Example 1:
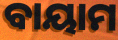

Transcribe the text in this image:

ବାୟାମ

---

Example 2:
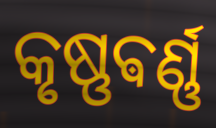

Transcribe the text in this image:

କୃଷ୍ଣଵର୍ଣ୍ଣ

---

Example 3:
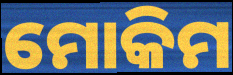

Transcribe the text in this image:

ମୋକିମ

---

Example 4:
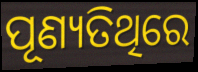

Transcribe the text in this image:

ପୂଣ୍ୟତିଥିରେ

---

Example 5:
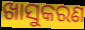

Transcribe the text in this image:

ଖାସୁକରଣ